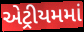
એટ્રીયમમાં